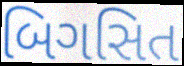
બિગસિત